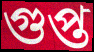
গুপ্ত